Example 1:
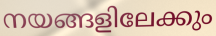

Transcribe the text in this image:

നയങ്ങളിലേക്കും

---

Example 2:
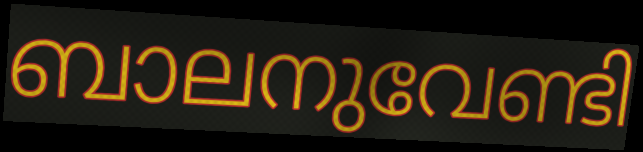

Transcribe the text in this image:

ബാലനുവേണ്ടി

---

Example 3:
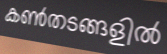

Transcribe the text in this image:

കൺതടങ്ങളിൽ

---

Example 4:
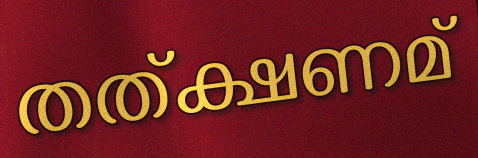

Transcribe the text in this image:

തത്ക്ഷണമ്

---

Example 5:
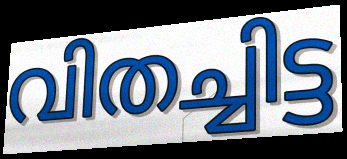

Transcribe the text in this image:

വിതച്ചിട്ട